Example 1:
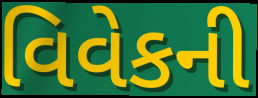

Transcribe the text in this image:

વિવેકની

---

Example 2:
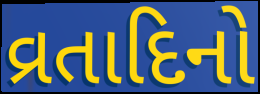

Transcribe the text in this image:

વ્રતાદિનો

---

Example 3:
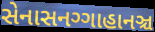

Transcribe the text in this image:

સેનાસનગ્ગાહાનઞ્ચ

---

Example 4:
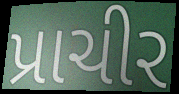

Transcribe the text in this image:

પ્રાચીર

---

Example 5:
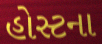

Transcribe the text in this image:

હોસ્ટના